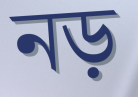
নড়